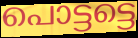
പൊട്ടട്ടെ